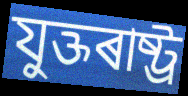
যুক্তৰাষ্ট্ৰ